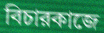
বিচারকাজে